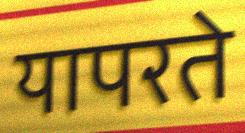
यापरते